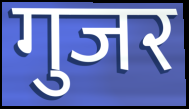
गुजर